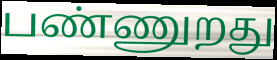
பண்ணுறது